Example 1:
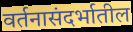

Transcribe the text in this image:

वर्तनासंदर्भातील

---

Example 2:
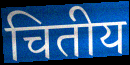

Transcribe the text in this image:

चितीय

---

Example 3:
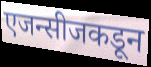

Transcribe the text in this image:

एजन्सीजकडून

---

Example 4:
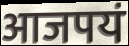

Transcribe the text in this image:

आजपयं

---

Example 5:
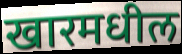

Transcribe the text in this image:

खारमधील